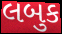
લબુક